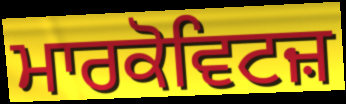
ਮਾਰਕੋਵਿਟਜ਼